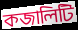
কজালিটি